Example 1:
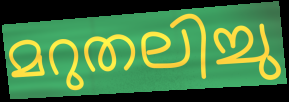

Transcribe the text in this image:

മറുതലിച്ചു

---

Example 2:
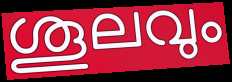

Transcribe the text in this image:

ശൂലവും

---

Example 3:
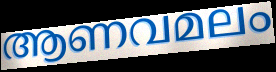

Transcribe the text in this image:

ആണവമലം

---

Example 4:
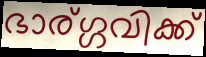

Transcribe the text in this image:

ഭാര്ഗ്ഗവിക്ക്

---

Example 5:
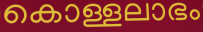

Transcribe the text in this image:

കൊള്ളലാഭം